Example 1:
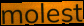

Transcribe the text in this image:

molest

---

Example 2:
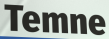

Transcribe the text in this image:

Temne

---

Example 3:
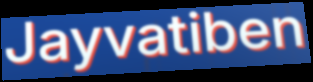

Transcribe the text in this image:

Jayvatiben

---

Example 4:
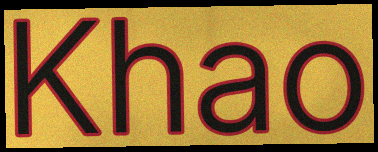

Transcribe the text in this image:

Khao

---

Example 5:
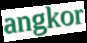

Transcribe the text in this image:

angkor